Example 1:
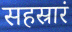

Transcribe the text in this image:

सहस्रारं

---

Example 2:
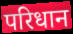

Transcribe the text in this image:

परिधान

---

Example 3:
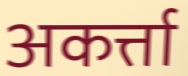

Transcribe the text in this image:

अकर्त्ता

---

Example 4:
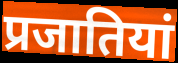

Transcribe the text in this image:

प्रजातियां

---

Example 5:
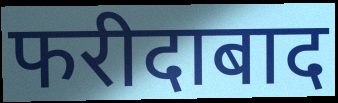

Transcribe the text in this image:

फरीदाबाद